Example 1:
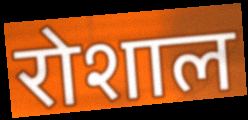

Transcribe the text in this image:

रोशाल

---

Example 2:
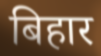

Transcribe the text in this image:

बिहार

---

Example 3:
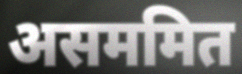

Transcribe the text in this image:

असममित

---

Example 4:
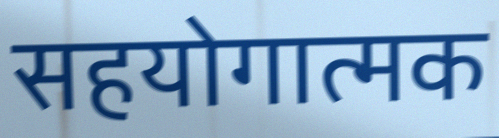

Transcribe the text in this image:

सहयोगात्मक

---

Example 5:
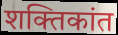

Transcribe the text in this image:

शक्तिकांत